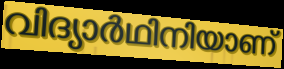
വിദ്യാർഥിനിയാണ്